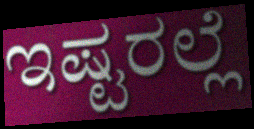
ಇಷ್ಟರಲ್ಲೆ